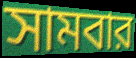
সামবার